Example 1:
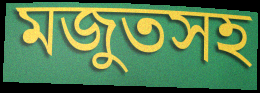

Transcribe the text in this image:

মজুতসহ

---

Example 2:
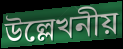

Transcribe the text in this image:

উল্লেখনীয়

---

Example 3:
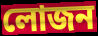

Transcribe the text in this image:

লোজন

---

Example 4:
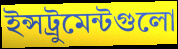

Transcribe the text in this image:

ইন্সট্রুমেন্টগুলো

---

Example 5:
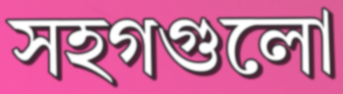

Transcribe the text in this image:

সহগগুলো